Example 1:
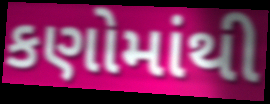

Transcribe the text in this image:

કણોમાંથી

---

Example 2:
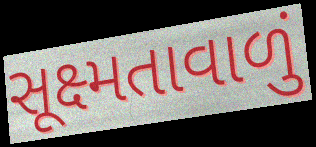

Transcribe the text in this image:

સૂક્ષ્મતાવાળું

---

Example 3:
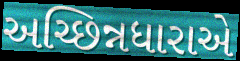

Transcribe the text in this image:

અચ્છિન્નધારાએ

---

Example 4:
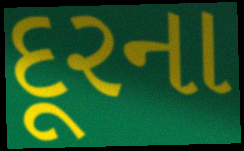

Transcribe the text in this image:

દૂરના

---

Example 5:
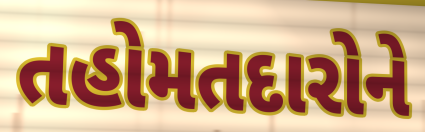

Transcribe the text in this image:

તહોમતદારોને